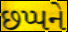
છપ્પને